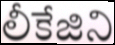
లీకేజిని